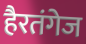
हैरतंगेज